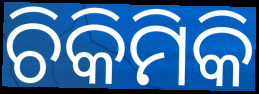
ଚିକିମିକି